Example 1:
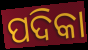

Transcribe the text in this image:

ପଦିକା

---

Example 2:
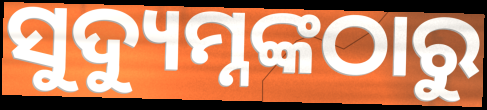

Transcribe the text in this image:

ସୁଦ୍ୟୁମ୍ନଙ୍କଠାରୁ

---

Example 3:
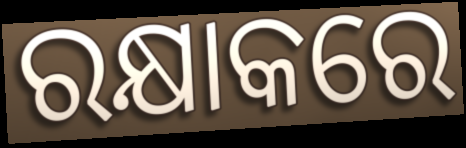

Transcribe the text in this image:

ରକ୍ଷାକରେ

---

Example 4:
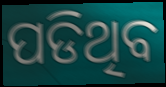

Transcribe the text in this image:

ପଡିଥିବ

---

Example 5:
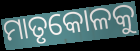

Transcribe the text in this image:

ମାତୃକୋଳକୁ